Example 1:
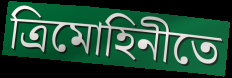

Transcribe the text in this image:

ত্রিমোহিনীতে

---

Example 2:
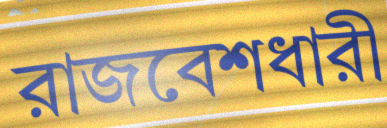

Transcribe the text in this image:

রাজবেশধারী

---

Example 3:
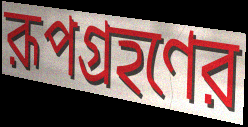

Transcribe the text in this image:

রূপগ্রহণের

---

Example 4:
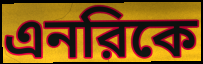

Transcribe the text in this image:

এনরিকে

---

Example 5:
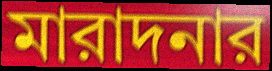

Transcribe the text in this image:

মারাদনার